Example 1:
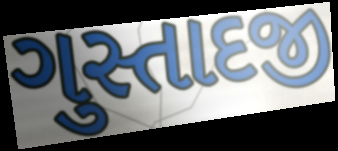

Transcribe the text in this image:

ગુસ્તાદજી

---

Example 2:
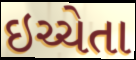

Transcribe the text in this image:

ઇચ્ચેતા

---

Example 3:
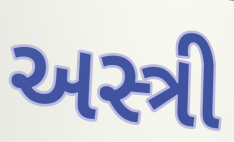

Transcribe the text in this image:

અસ્ત્રી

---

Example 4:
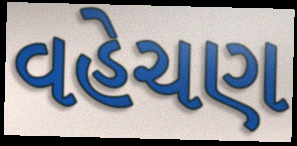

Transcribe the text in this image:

વહેચણ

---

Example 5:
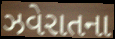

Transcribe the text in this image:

ઝવેરાતના